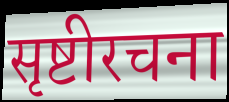
सृष्टीरचना